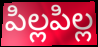
పిల్లపిల్ల